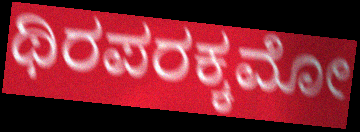
ಥಿರಪರಕ್ಕಮೋ